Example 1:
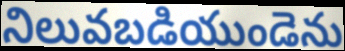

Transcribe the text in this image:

నిలువబడియుండెను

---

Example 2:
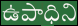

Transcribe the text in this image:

ఉపాధిని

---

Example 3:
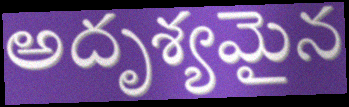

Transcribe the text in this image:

అదృశ్యమైన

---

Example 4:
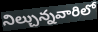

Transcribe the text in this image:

నిల్చున్నవారిలో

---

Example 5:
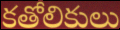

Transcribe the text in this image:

కతోలికులు